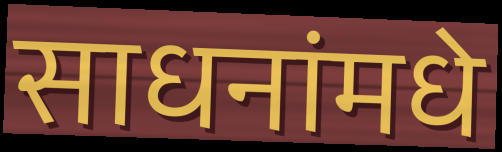
साधनांमधे